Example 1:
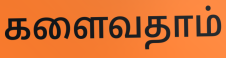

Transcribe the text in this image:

களைவதாம்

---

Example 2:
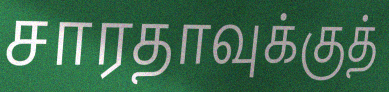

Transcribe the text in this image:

சாரதாவுக்குத்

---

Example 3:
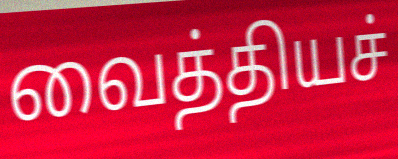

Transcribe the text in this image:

வைத்தியச்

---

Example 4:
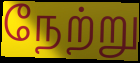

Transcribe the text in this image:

நேற்று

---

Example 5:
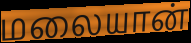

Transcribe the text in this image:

மலையான்